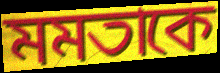
মমতাকে